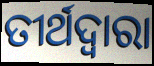
ତୀର୍ଥଦ୍ବାରା